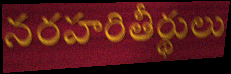
నరహరితీర్థులు